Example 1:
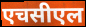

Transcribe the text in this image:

एचसीएल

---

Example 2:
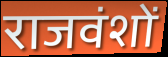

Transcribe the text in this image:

राजवंशों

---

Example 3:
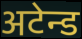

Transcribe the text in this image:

अटेन्ड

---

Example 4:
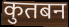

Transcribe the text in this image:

कुतबन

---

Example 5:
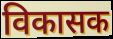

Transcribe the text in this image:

विकासक